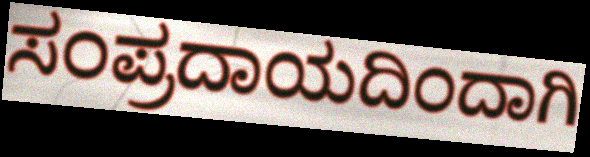
ಸಂಪ್ರದಾಯದಿಂದಾಗಿ